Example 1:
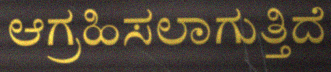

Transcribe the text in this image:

ಆಗ್ರಹಿಸಲಾಗುತ್ತಿದೆ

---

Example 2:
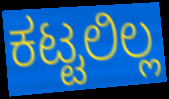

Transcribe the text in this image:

ಕಟ್ಟಲಿಲ್ಲ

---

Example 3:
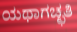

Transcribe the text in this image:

ಯಥಾಗಚ್ಛತಿ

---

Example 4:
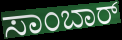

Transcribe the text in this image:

ಸಾಂಬಾರ್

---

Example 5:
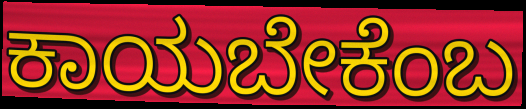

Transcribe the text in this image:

ಕಾಯಬೇಕೆಂಬ